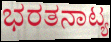
ಭರತನಾಟ್ಯ